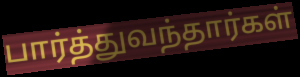
பார்த்துவந்தார்கள்